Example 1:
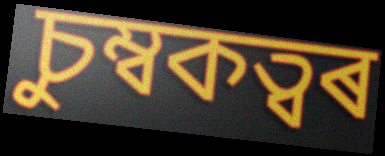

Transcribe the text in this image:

চুম্বকত্বৰ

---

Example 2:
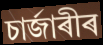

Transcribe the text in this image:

চাৰ্জাৰীৰ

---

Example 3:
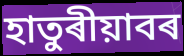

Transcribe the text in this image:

হাতুৰীয়াবৰ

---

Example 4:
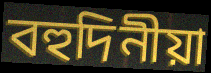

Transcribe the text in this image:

বহুদিনীয়া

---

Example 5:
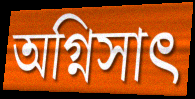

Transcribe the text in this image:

অগ্নিসাৎ